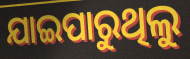
ଯାଇପାରୁଥିଲୁ